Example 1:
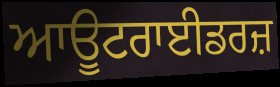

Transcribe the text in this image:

ਆਊਟਰਾਈਡਰਜ਼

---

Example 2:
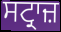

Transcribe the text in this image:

ਸਟ੍ਰਾਜ਼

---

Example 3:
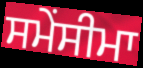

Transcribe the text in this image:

ਸਮੇਂਸੀਮਾ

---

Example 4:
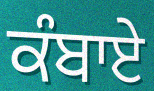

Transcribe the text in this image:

ਕੰਬਾਏ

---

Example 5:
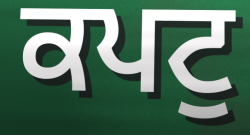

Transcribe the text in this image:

ਕਪਟੁ